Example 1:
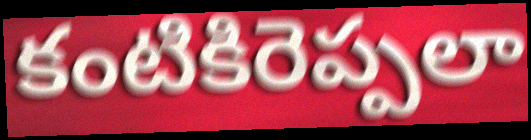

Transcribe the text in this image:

కంటికిరెప్పలా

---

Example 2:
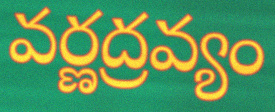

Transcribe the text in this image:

వర్ణద్రవ్యం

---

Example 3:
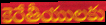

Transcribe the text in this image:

కెరేతీయులకు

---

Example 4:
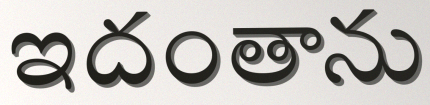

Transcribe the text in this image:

ఇదంతాను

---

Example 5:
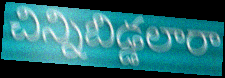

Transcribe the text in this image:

చిన్నిబిడ్డలారా